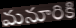
మనూరికి